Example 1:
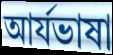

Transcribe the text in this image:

আর্যভাষা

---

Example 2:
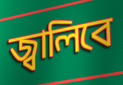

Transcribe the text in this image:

জ্বালিবে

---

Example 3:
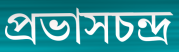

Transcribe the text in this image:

প্রভাসচন্দ্র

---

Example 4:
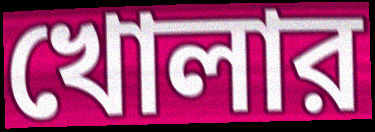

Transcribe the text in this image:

খোলার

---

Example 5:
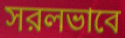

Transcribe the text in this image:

সরলভাবে